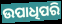
ଉପାଧିପରି